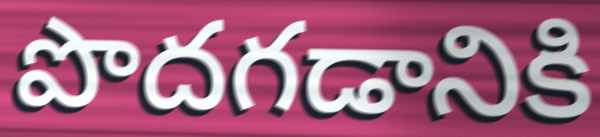
పొదగడానికి